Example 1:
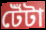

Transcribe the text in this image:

টেঁটা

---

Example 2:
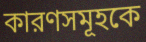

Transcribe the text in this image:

কারণসমূহকে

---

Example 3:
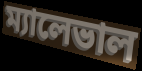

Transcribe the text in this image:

ম্যালেভাল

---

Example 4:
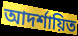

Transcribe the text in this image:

আদর্শায়িত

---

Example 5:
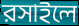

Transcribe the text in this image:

রসাইলে